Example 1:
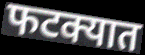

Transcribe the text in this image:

फटक्यात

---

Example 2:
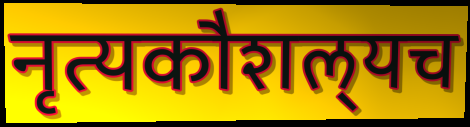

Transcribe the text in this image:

नृत्यकौशल्यच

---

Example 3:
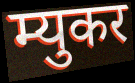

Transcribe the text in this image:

म्युकर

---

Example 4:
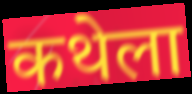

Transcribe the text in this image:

कथेला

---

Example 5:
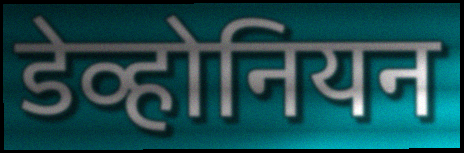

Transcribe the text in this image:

डेव्होनियन